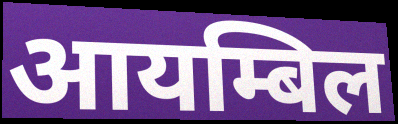
आयम्बिल